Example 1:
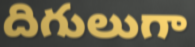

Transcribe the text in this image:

దిగులుగా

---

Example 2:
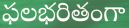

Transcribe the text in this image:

ఫలభరితంగా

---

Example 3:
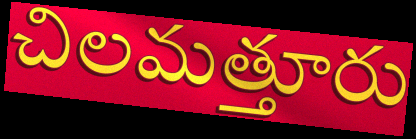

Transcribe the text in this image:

చిలమత్తూరు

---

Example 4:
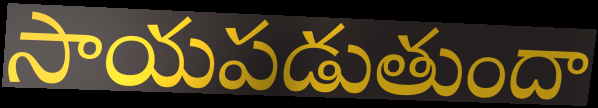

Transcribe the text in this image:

సాయపడుతుందా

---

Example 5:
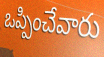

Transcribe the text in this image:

ఒప్పించేవారు